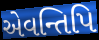
એવન્તિપિ